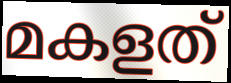
മകളത്